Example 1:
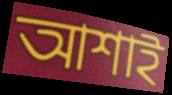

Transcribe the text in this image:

আশাই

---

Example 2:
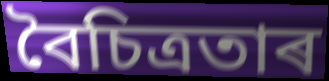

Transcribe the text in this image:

বৈচিত্ৰতাৰ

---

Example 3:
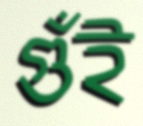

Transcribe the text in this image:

গুঁই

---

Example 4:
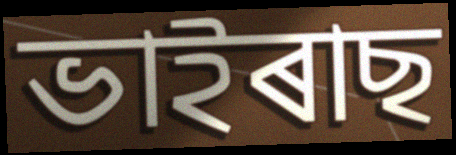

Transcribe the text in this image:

ভাইৰাছ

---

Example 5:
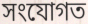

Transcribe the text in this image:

সংযোগত